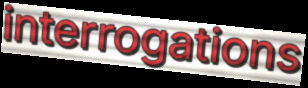
interrogations